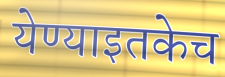
येण्याइतकेच